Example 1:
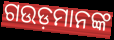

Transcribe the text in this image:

ଗଉଡ଼ମାନଙ୍କ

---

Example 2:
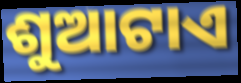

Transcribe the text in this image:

ଶୁଆଟାଏ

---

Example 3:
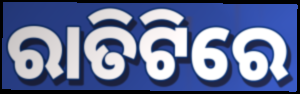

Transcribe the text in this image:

ରାତିଟିରେ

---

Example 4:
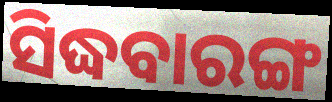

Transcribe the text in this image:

ସିଦ୍ଧବାରଙ୍ଗ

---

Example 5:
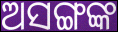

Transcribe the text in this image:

ଅସଙ୍ଗଙ୍କ